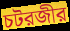
চটরজীর